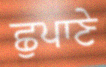
ਛੁਪਾਣੇ